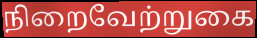
நிறைவேற்றுகை